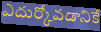
ఎదుర్కోవడానికే